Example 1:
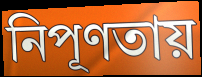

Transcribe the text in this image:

নিপূণতায়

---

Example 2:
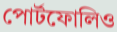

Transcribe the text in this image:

পোর্টফোলিও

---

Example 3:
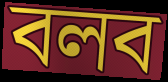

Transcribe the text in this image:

বলব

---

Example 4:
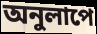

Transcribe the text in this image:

অনুলাপে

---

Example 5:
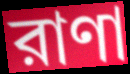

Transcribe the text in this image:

রাণা